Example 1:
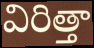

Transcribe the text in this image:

విరిత్తా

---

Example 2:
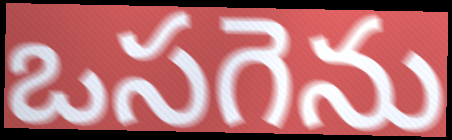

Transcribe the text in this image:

ఒసగెను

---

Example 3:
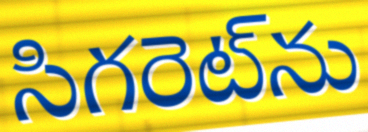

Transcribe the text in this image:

సిగరెట్‌ను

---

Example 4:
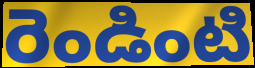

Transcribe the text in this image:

రెండింటి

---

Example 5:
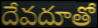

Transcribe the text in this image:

దేవదూతో